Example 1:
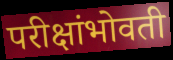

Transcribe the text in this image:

परीक्षांभोवती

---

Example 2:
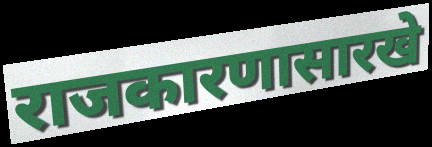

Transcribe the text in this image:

राजकारणासारखे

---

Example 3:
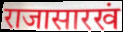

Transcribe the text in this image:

राजासारखं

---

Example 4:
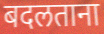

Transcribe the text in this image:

बदलताना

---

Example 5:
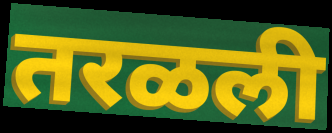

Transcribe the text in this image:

तरळली